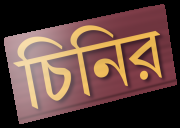
চিনির